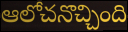
ఆలోచనొచ్చింది